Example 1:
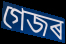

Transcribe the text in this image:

গেজৰ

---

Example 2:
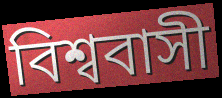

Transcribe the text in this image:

বিশ্ববাসী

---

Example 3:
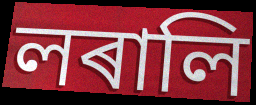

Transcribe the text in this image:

লৰালি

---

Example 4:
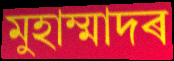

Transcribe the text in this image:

মুহাম্মাদৰ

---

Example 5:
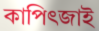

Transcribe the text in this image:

কাপিৎজাই